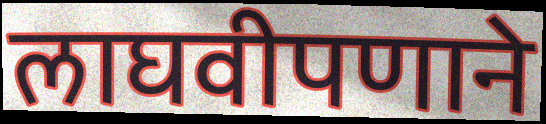
लाघवीपणाने